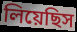
লিয়েছিস